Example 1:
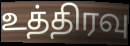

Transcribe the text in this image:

உத்திரவு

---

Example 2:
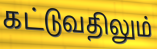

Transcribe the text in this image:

கட்டுவதிலும்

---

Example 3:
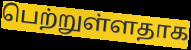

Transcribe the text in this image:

பெற்றுள்ளதாக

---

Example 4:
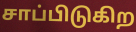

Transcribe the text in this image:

சாப்பிடுகிற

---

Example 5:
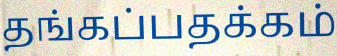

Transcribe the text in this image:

தங்கப்பதக்கம்